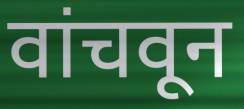
वांचवून